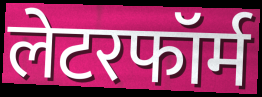
लेटरफॉर्म